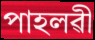
পাহলৱী